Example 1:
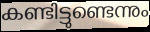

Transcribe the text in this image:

കണ്ടിട്ടുണ്ടെന്നും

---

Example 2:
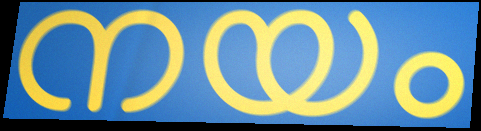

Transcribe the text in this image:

നയം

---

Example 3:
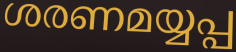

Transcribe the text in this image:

ശരണമയ്യപ്പ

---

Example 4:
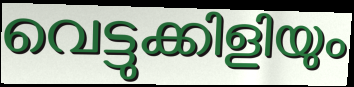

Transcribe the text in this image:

വെട്ടുക്കിളിയും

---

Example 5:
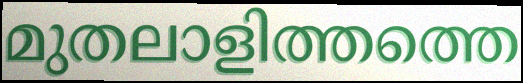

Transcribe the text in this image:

മുതലാളിത്തത്തെ